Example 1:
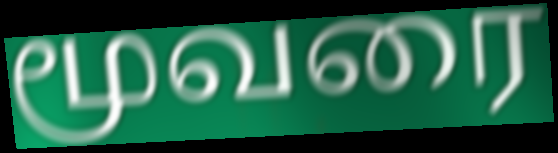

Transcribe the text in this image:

மூவரை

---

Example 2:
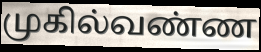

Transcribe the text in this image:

முகில்வண்ண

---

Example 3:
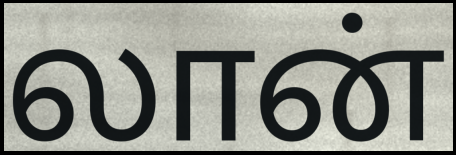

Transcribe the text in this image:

லான்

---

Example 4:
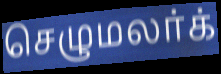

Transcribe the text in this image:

செழுமலர்க்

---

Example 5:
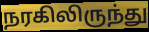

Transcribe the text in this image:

நரகிலிருந்து